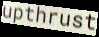
upthrust